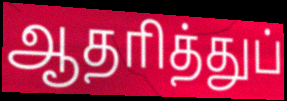
ஆதரித்துப்